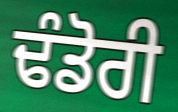
ਢੰਡੋਰੀ